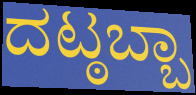
ದಟ್ಠಬ್ಬಾ